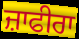
ਜ਼ਾਫੀਰਾ